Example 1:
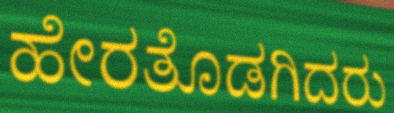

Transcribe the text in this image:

ಹೇರತೊಡಗಿದರು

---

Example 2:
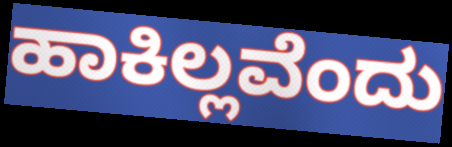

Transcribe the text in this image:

ಹಾಕಿಲ್ಲವೆಂದು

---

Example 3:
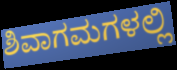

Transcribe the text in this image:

ಶಿವಾಗಮಗಳಲ್ಲಿ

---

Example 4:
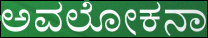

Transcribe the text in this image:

ಅವಲೋಕನಾ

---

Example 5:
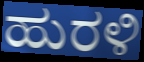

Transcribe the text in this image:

ಹುರಳಿ